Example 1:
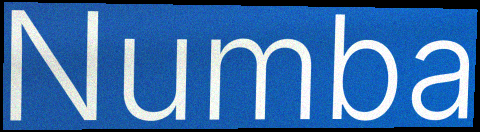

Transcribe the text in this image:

Numba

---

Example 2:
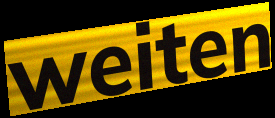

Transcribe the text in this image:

weiten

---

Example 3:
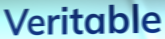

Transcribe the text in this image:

Veritable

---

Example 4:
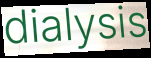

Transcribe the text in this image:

dialysis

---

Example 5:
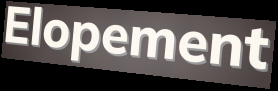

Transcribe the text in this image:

Elopement